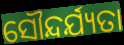
ସୌନ୍ଦର୍ଯ୍ୟତା